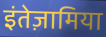
इंतेज़ामिया